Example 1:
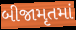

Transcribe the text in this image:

બીજામૃતમાં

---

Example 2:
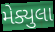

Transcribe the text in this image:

મેક્યુલા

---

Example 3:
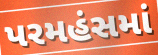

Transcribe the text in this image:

પરમહંસમાં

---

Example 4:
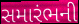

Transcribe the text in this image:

સમારંભની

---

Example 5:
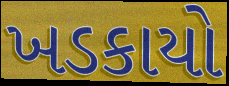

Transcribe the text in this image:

ખડકાયો